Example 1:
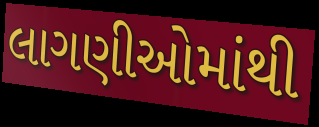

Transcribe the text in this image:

લાગણીઓમાંથી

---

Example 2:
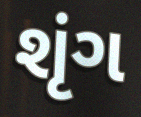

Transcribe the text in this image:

શૃંગ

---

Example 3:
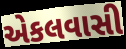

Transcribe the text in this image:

એકલવાસી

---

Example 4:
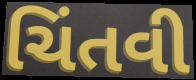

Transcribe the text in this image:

ચિંતવી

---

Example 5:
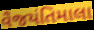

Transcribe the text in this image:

વૈજયંતિમાલા